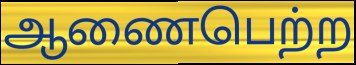
ஆணைபெற்ற